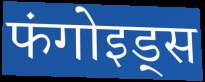
फंगोइड्स